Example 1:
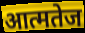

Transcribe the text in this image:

आत्मतेज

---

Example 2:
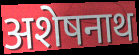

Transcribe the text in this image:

अशेषनाथ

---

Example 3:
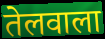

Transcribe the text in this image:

तेलवाला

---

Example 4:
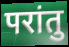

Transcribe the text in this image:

परांतु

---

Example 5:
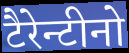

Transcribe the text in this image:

टैरेन्टीनो